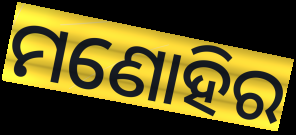
ମଣୋହିର